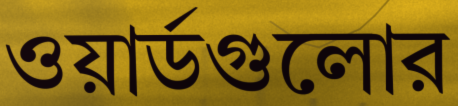
ওয়ার্ডগুলোর